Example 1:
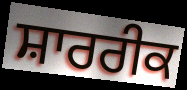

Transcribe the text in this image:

ਸ਼ਾਰਰੀਕ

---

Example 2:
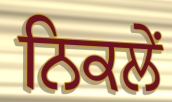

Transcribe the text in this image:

ਨਿਕਲੇਂ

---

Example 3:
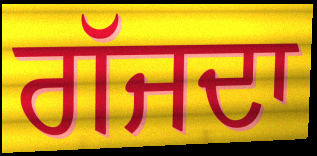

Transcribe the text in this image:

ਗੱਜਦਾ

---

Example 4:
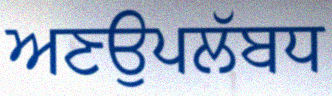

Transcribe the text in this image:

ਅਣਉਪਲੱਬਧ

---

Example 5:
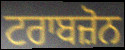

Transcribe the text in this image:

ਟਰਾਬਜ਼ੋਨ